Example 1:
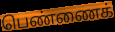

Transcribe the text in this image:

பெண்ணைக்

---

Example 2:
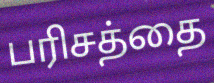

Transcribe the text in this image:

பரிசத்தை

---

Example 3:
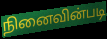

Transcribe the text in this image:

நினைவின்படி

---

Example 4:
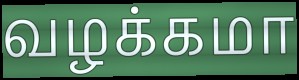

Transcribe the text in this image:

வழக்கமா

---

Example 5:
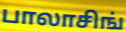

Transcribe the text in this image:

பாலாசிங்